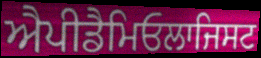
ਐਪੀਡੈਮਿਓਲਾਜਿਸਟ